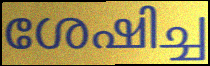
ശേഷിച്ച